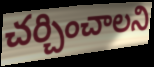
చర్చించాలని